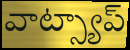
వాట్స్యాప్